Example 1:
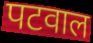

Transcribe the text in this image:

पटवाल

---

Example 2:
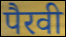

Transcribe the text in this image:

पैरवी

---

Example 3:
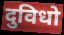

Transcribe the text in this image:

दुविधो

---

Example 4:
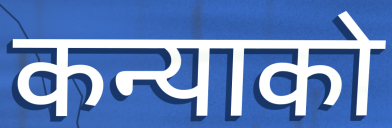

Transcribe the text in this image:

कन्याको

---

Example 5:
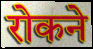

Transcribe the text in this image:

रोकने